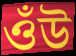
ওঁউ